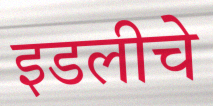
इडलीचे